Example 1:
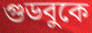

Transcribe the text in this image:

গুডবুকে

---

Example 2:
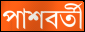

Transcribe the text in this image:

পাশবর্তী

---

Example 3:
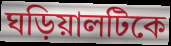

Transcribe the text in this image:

ঘড়িয়ালটিকে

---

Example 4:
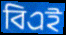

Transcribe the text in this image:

বিএই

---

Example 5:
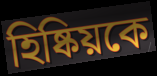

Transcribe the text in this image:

হিষ্কিয়কে